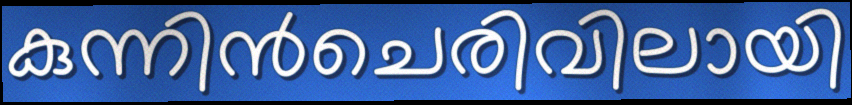
കുന്നിൻചെരിവിലായി